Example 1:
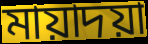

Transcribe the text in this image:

মায়াদয়া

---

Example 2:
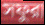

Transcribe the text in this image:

সফুরা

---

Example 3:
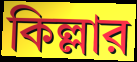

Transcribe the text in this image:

কিল্লার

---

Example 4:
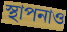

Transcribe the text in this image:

স্থাপনাও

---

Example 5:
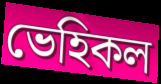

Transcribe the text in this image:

ভেহিকল